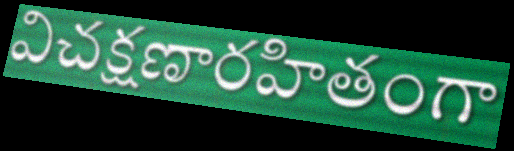
విచక్షణారహితంగా